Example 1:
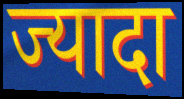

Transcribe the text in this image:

ज्यादा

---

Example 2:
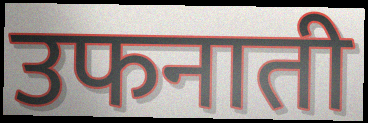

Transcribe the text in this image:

उफनाती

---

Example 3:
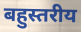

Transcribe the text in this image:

बहुस्तरीय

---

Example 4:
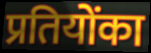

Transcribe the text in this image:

प्रतियोंका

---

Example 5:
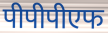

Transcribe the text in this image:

पीपीपीएफ